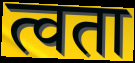
त्वता